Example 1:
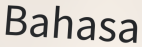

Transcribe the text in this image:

Bahasa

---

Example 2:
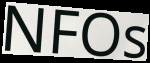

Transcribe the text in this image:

NFOs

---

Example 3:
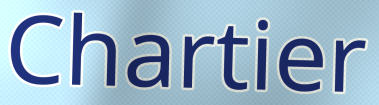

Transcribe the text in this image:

Chartier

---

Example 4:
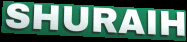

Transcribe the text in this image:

SHURAIH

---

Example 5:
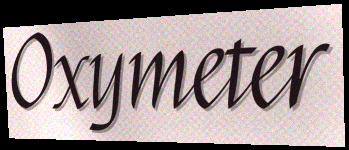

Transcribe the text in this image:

Oxymeter